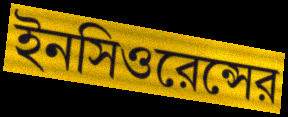
ইনসিওরেন্সের